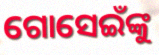
ଗୋସେଇଁଙ୍କୁ